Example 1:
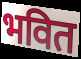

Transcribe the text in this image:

भवित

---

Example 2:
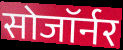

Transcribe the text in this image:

सोजॉर्नर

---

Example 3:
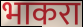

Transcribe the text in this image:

भाकरा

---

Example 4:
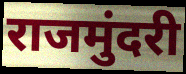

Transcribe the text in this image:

राजमुंदरी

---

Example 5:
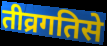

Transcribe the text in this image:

तीव्रगतिसे